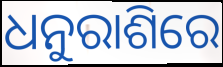
ଧନୁରାଶିରେ